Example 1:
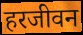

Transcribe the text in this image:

हरजीवन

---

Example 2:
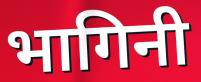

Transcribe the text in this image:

भागिनी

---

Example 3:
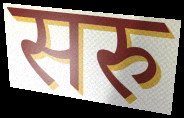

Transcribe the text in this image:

सरु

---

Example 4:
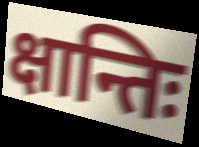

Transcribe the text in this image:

क्षान्तिः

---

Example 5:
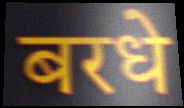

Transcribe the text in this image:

बरधे